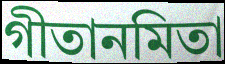
গীতানমিতা